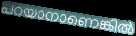
പറയാനാണെങ്കിൽ